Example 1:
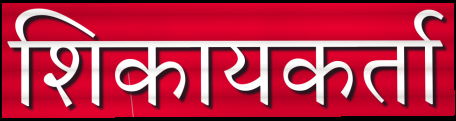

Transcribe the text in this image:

शिकायकर्ता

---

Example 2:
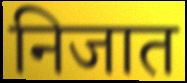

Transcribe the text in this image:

निजात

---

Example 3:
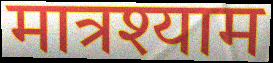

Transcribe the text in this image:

मात्रश्याम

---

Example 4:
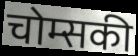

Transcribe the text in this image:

चोम्सकी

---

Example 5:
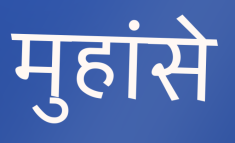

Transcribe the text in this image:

मुहांसे